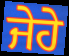
ਜੇਹੇ